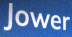
Jower